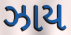
ઝાય